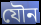
যৌন